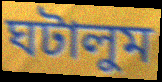
ঘটালুম